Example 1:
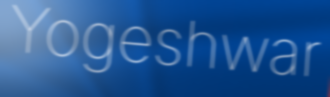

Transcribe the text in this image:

Yogeshwar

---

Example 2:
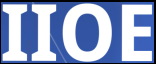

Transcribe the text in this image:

IIOE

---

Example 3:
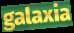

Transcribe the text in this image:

galaxia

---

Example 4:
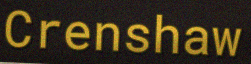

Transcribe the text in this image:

Crenshaw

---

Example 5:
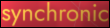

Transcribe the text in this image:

synchronic